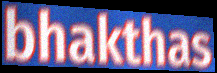
bhakthas